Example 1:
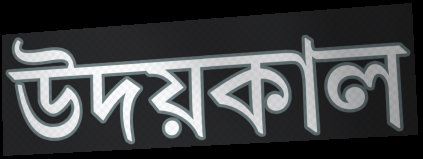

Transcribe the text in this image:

উদয়কাল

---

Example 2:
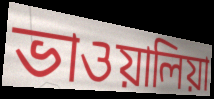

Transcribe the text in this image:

ভাওয়ালিয়া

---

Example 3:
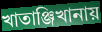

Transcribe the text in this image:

খাতাঞ্জিখানায়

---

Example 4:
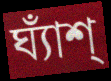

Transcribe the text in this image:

ঘ্যাঁশ্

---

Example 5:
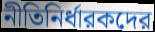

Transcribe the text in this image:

নীতিনির্ধারকদের